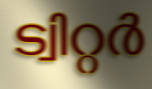
ട്വിറ്റർ